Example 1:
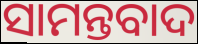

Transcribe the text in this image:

ସାମନ୍ତବାଦ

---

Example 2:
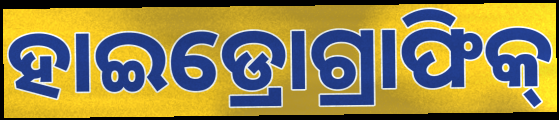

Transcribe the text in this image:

ହାଇଡ୍ରୋଗ୍ରାଫିକ୍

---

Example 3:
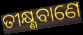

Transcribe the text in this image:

ତୀକ୍ଷ୍ଣବାଣେ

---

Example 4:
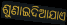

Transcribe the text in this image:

ଶୁଣାଇଦିଆଯାଏ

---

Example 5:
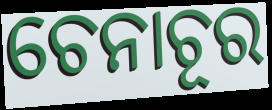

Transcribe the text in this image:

ଚେନାଚୂର